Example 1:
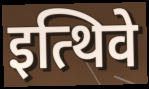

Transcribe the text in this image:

इत्थिवे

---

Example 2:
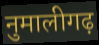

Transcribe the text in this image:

नुमालीगढ़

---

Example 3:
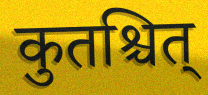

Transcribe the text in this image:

कुतश्चित्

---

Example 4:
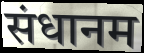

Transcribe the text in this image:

संधानम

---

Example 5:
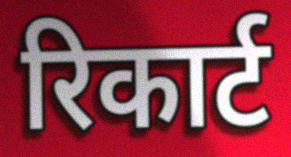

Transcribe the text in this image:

रिकार्ट